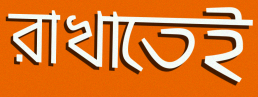
রাখাতেই